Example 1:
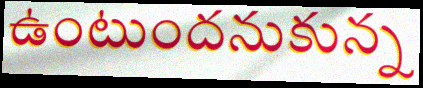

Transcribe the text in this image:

ఉంటుందనుకున్న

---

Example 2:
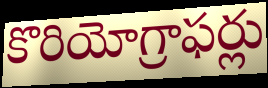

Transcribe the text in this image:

కొరియోగ్రాఫర్లు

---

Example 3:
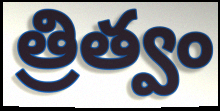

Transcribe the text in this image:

త్రిత్వం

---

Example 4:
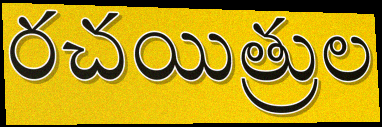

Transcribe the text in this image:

రచయిత్రుల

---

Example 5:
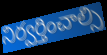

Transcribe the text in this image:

నిర్వర్తించాల్సి